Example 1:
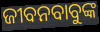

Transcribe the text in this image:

ଜୀବନବାବୁଙ୍କ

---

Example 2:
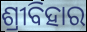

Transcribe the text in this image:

ଶ୍ରୀବିହାର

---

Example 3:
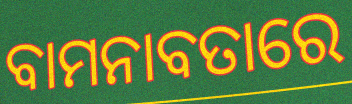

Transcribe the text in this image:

ବାମନାବତାରେ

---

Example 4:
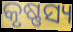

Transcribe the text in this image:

କୃଷ୍ଣସ୍ୟ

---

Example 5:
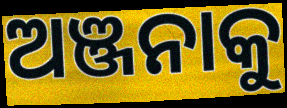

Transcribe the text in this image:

ଅଞ୍ଜନାକୁ